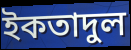
ইকতাদুল